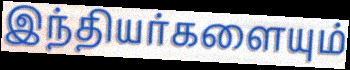
இந்தியர்களையும்